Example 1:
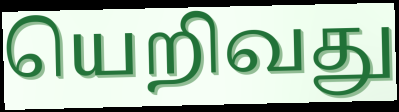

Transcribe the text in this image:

யெறிவது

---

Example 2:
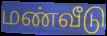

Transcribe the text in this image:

மண்வீடு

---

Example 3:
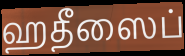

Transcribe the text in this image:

ஹதீஸைப்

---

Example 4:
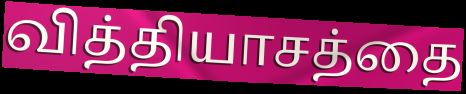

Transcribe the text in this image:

வித்தியாசத்தை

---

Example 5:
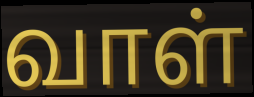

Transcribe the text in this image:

வாள்